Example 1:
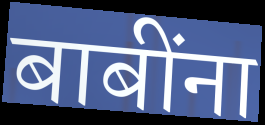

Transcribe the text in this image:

बाबींना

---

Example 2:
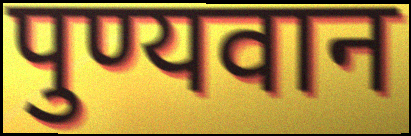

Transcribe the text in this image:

पुण्यवान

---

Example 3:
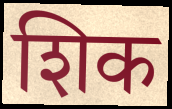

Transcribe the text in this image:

शिक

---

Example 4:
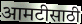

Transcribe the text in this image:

आमटीसाठी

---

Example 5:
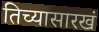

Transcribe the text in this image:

तिच्यासारखं